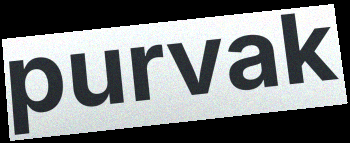
purvak